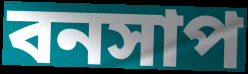
বনসাপ